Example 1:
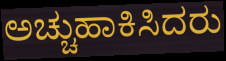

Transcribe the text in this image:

ಅಚ್ಚುಹಾಕಿಸಿದರು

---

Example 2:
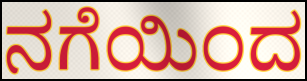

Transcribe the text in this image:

ನಗೆಯಿಂದ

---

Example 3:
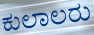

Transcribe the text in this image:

ಕುಲಾಲರು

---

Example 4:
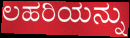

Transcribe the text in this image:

ಲಹರಿಯನ್ನು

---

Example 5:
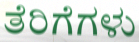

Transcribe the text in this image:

ತೆರಿಗೆಗಳು